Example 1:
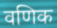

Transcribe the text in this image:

वणिक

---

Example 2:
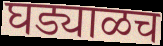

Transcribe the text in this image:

घड्याळच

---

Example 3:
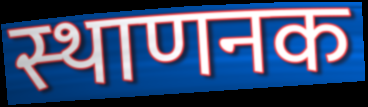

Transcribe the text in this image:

स्थाणनक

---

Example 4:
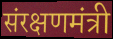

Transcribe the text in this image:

संरक्षणमंत्री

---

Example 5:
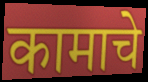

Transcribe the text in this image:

कामाचे